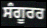
ਸੰਗੂਰਰ